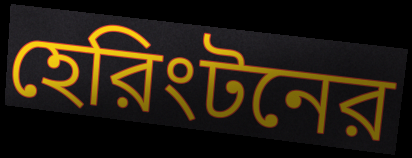
হেরিংটনের